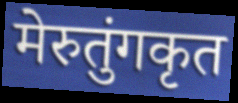
मेरुतुंगकृत